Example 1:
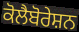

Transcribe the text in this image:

ਕੋਲੈਬੋਰੇਸ਼ਨ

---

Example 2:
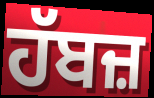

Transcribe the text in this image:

ਹੱਬਜ਼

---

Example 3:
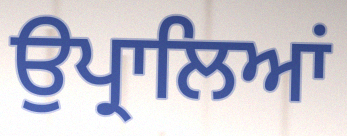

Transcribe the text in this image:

ਉਪ੍ਰਾਲਿਆਂ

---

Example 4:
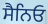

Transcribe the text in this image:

ਸੈਨਿਓ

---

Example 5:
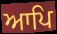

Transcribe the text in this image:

ਆਪਿ